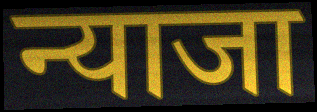
न्याजा